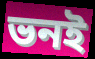
ভনই